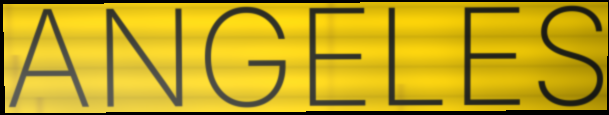
ANGELES